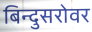
बिन्दुसरोवर